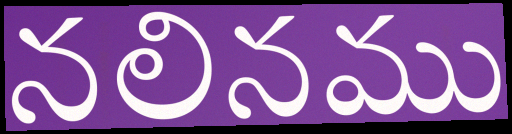
నలినము